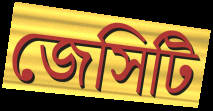
জেসিটি